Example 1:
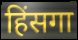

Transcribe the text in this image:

हिंसगा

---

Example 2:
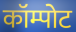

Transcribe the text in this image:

कॉम्पोट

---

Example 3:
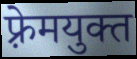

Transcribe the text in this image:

फ़्रेमयुक्त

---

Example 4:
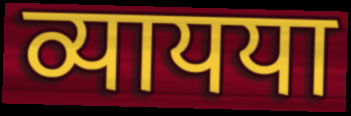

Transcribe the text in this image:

व्यायया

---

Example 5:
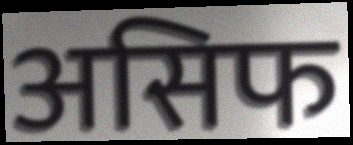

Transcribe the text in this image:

असिफ